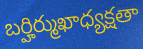
బర్హిర్ముఖాధ్యక్షతా